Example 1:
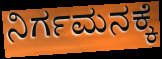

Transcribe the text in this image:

ನಿರ್ಗಮನಕ್ಕೆ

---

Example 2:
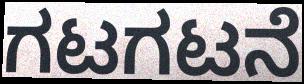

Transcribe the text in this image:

ಗಟಗಟನೆ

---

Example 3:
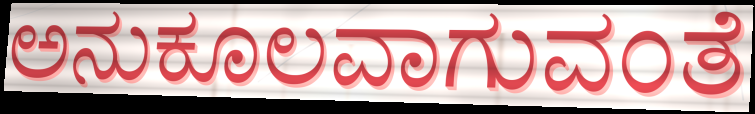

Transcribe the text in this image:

ಅನುಕೂಲವಾಗುವಂತೆ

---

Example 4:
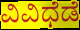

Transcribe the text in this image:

ವಿವಿಧೆಡೆ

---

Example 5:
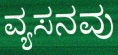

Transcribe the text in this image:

ವ್ಯಸನವು